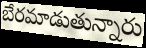
బేరమాడుతున్నారు